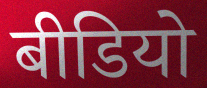
बीडियो